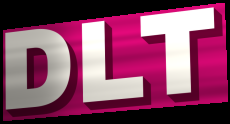
DLT